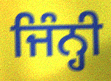
ਜਿੰਨ੍ਹੀ